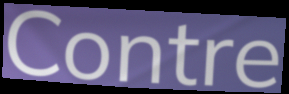
Contre